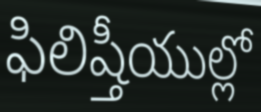
ఫిలిష్తీయుల్లో